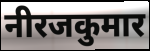
नीरजकुमार